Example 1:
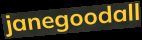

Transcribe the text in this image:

janegoodall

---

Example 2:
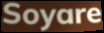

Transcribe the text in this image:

Soyare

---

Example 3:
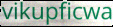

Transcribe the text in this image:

vikupficwa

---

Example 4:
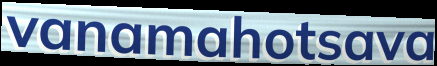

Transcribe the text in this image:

vanamahotsava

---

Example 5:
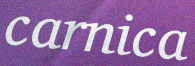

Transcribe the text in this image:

carnica